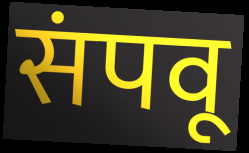
संपवू